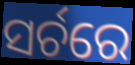
ସର୍ଚରେ